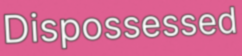
Dispossessed